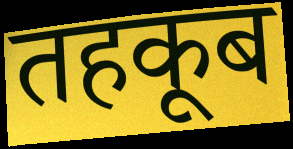
तहकूब